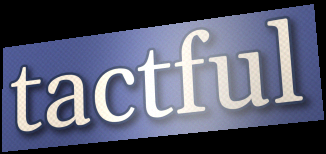
tactful